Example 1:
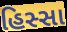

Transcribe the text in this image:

હિસ્સા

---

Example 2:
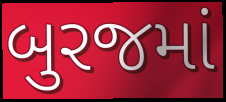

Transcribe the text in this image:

બુરજમાં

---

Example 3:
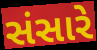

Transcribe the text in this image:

સંસારે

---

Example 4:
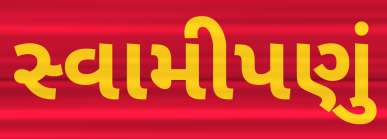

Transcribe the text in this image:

સ્વામીપણું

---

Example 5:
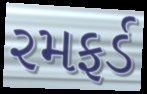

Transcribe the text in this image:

રમફર્ડ